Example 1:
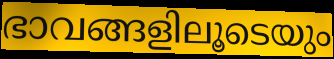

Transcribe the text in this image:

ഭാവങ്ങളിലൂടെയും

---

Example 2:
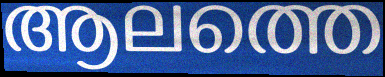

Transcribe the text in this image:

ആലത്തെ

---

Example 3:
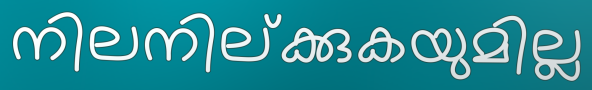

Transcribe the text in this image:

നിലനില്ക്കുകയുമില്ല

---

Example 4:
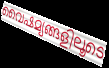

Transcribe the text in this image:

വൈഷമ്യങ്ങളിലൂടെ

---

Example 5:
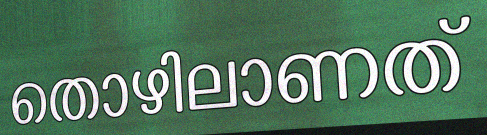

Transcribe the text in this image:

തൊഴിലാണത്